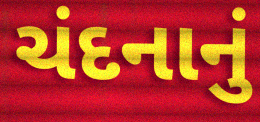
ચંદનાનું